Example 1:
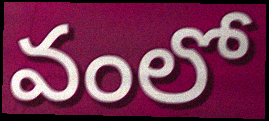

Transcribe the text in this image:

వంలో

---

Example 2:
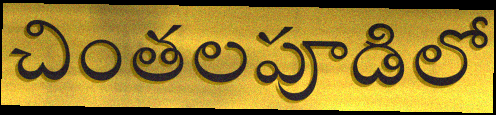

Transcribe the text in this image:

చింతలపూడిలో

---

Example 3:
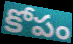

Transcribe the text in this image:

కోపం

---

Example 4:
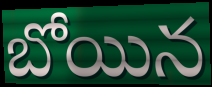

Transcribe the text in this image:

బోయిన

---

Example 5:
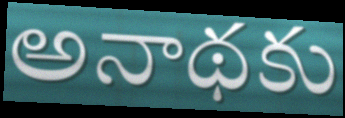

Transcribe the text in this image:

అనాథకు